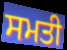
ਸਮਤੀ